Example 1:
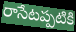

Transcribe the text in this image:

రాసేటప్పటికి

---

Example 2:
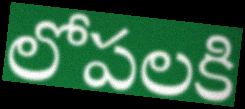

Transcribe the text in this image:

లోపలకి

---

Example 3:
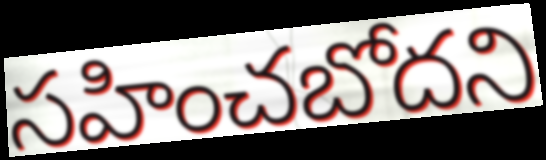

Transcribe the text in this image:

సహించబోదని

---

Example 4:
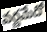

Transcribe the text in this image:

వర్ణమేదో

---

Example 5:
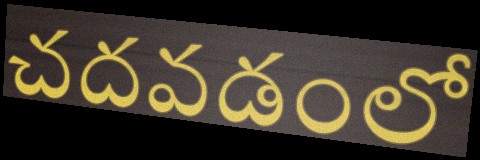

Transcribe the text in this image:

చదవడంలో